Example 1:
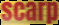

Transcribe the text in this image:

scarp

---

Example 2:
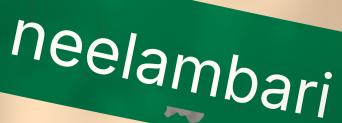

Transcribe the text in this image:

neelambari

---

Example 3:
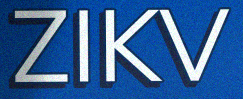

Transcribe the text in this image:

ZIKV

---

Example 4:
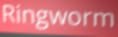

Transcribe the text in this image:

Ringworm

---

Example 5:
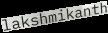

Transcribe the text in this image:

lakshmikanth